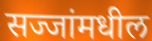
सज्जांमधील